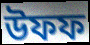
উফফ